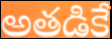
అతడికే